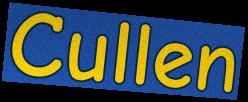
Cullen